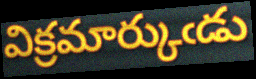
విక్రమార్కుఁడు